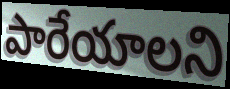
పారేయాలని